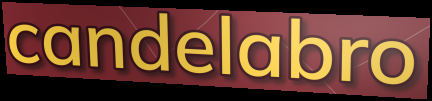
candelabro